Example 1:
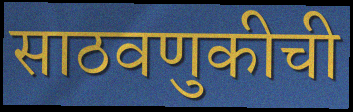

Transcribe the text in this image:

साठवणुकीची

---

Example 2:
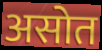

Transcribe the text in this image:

असोत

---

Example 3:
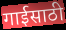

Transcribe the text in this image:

गाईसाठी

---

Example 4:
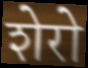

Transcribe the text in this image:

शेरो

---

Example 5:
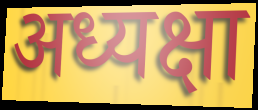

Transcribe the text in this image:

अध्यक्षा